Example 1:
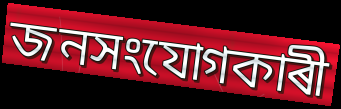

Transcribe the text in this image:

জনসংযোগকাৰী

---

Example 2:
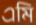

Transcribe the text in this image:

এমি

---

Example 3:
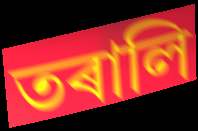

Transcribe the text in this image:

তৰালি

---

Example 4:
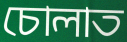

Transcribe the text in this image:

চোলাত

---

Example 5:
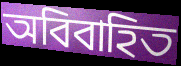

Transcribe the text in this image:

অবিবাহিত